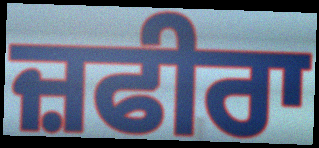
ਜ਼ਫੀਰਾ